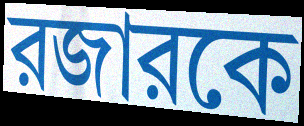
রজারকে